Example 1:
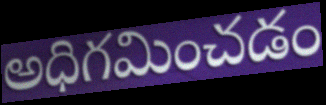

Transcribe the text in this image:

అధిగమించడం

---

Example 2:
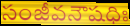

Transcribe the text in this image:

సంజీవనౌషధిః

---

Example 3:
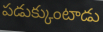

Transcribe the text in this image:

పడుక్కుంటాడు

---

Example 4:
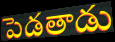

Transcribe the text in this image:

పెడతాడు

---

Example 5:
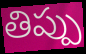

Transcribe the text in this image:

తిప్పు